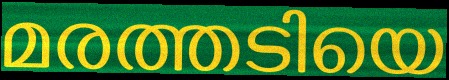
മരത്തടിയെ